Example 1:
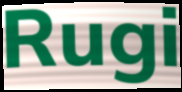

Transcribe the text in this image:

Rugi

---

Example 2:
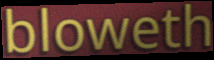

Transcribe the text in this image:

bloweth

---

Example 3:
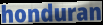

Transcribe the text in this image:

honduran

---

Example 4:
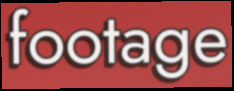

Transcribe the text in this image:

footage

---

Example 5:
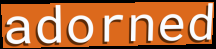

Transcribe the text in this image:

adorned